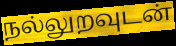
நல்லுறவுடன்